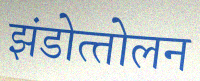
झंडोत्‍तोलन